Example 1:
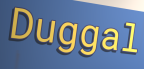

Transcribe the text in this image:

Duggal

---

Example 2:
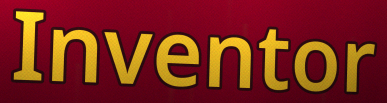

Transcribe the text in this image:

Inventor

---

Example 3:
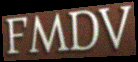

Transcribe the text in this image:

FMDV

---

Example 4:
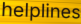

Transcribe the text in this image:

helplines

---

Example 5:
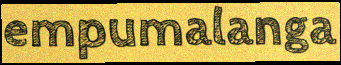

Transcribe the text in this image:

empumalanga